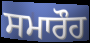
ਸਮਾਰੌਹ